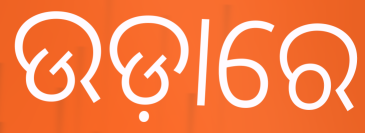
ଉଡ଼ାରେ